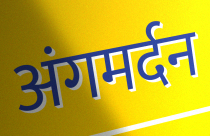
अंगमर्दन